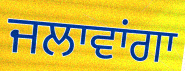
ਜਲਾਵਾਂਗਾ